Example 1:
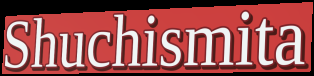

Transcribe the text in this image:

Shuchismita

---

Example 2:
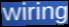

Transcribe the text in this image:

wiring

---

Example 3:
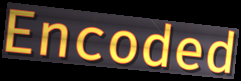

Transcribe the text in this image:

Encoded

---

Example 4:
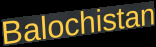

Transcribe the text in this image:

Balochistan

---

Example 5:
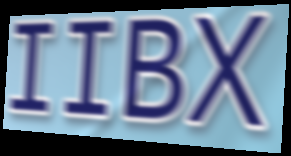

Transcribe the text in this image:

IIBX